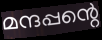
മന്ദപ്പന്റെ